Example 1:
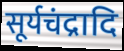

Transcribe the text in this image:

सूर्यचंद्रादि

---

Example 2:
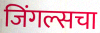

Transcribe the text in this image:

जिंगल्सचा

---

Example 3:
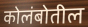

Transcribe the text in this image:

कोलंबोतील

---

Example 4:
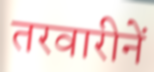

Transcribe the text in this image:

तरवारीनें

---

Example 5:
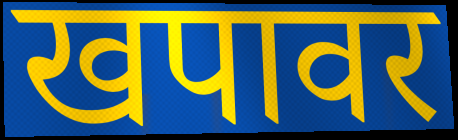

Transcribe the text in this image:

खपावर